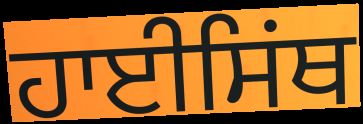
ਹਾਈਸਿਂਥ